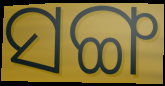
ସଙ୍ଗ